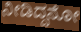
ನೀಡಿದ್ದನೋ